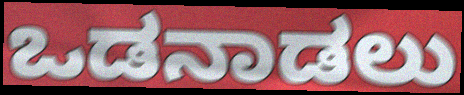
ಒಡನಾಡಲು